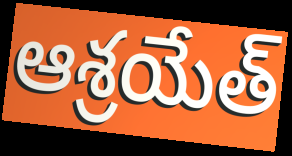
ఆశ్రయేత్